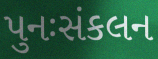
પુનઃસંકલન